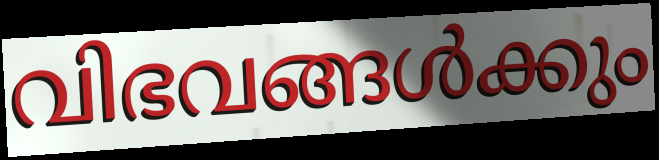
വിഭവങ്ങൾക്കും